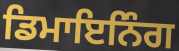
ਡਿਮਾਇਨਿੰਗ